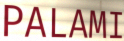
PALAMI